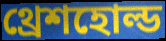
থ্রেশহোল্ড